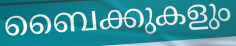
ബൈക്കുകളും